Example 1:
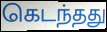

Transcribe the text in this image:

கெடந்தது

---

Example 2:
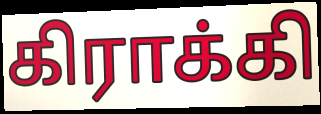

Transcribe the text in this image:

கிராக்கி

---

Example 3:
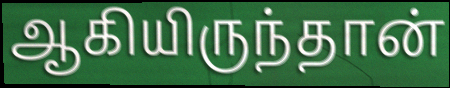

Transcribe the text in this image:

ஆகியிருந்தான்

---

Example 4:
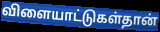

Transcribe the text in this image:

விளையாட்டுகள்தான்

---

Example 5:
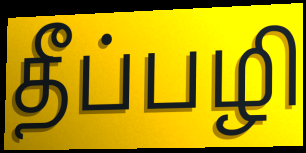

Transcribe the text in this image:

தீப்பழி